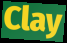
Clay